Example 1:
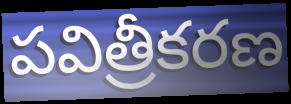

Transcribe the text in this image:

పవిత్రీకరణ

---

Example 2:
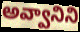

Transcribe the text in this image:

అవ్వానిని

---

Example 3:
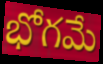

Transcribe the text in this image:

భోగమే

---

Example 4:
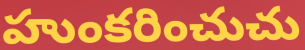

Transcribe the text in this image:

హుంకరించుచు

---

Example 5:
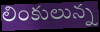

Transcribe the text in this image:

లింకులున్న